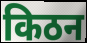
किठन